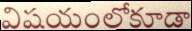
విషయంలోకూడా